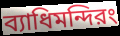
ব্যাধিমন্দিরং